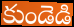
కుండెడి